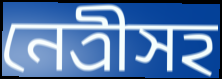
নেত্রীসহ